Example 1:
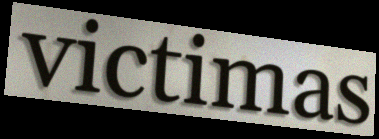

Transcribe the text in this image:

victimas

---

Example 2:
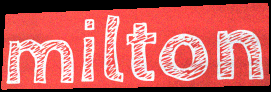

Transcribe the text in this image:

milton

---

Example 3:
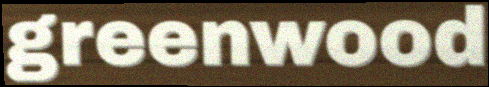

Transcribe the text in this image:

greenwood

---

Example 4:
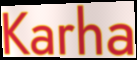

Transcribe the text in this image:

Karha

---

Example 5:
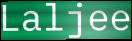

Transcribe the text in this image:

Laljee